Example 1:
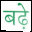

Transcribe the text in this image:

बढ़े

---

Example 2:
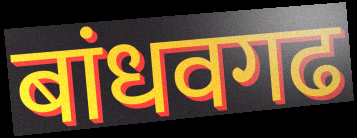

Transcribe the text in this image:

बांधवगढ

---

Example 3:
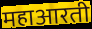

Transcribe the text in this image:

महाआरती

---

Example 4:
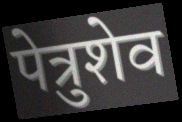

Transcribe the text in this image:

पेत्रुशेव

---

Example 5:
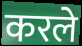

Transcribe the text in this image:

करले